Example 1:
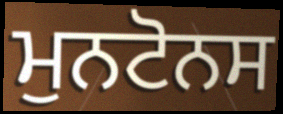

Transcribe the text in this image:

ਮੁਨਟੋਨਸ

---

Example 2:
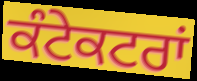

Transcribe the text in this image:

ਕੰਟੇਕਟਰਾਂ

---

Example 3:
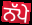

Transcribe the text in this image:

ਨੱਪੇ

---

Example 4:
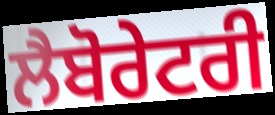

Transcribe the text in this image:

ਲੈਬੋਰੇਟਰੀ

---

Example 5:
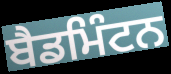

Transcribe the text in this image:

ਬੈਡਮਿੰਟਨ